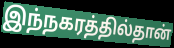
இந்நகரத்தில்தான்